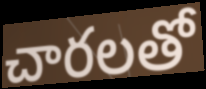
చారలతో